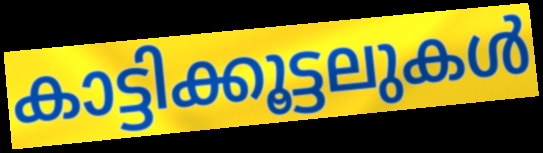
കാട്ടിക്കൂട്ടലുകൾ